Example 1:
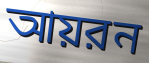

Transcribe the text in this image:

আয়রন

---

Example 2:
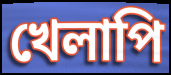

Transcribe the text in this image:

খেলাপি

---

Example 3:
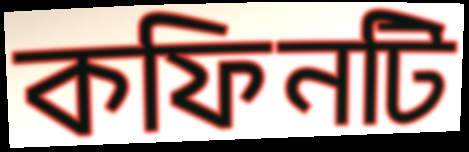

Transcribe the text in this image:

কফিনটি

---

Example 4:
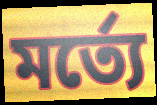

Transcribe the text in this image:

মর্ত্যে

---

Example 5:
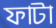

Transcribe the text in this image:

ফাটা